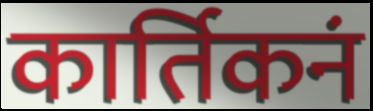
कार्तिकनं